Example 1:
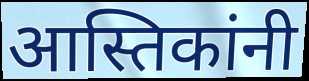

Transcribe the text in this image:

आस्तिकांनी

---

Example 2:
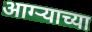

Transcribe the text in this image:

आग्ऱ्याच्या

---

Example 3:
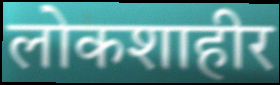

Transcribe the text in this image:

लोकशाहीर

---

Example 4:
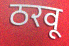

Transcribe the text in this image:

ठरवू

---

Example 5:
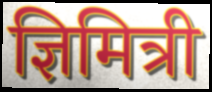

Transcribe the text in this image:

ज्ञिमित्री